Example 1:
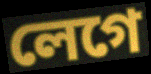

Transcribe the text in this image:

লেগে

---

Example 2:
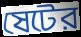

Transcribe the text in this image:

ষেটের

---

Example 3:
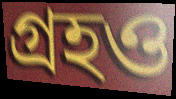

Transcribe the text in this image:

গ্রহও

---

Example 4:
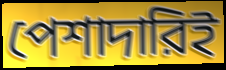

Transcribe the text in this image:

পেশাদারিই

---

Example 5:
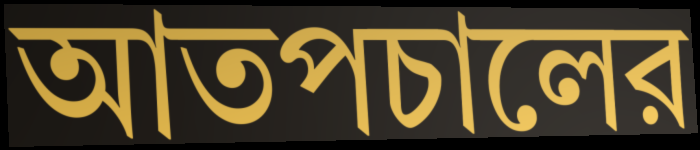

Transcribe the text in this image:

আতপচালের